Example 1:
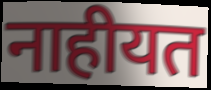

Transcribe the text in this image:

नाहीयत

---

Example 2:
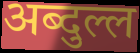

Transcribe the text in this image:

अब्दुल्ल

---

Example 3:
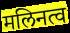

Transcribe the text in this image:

मलिनत्व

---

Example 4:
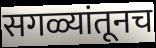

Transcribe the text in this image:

सगळ्यांतूनच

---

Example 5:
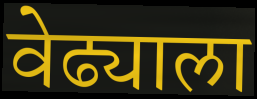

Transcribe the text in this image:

वेढ्याला